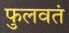
फुलवतं